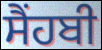
ਸੈਂਹਬੀ